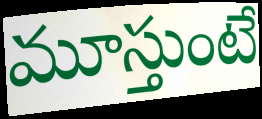
మూస్తుంటే